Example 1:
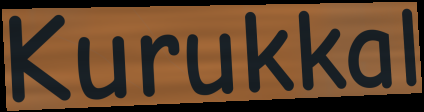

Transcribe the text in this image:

Kurukkal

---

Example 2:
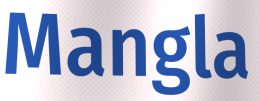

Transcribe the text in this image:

Mangla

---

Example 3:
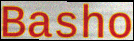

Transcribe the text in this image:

Basho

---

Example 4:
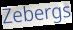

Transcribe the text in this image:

Zebergs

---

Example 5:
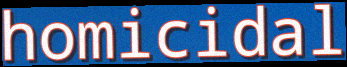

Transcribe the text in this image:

homicidal